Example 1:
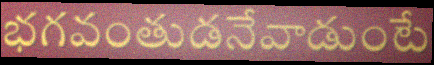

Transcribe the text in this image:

భగవంతుడనేవాడుంటే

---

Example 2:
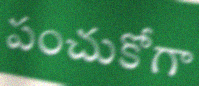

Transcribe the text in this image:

పంచుకోగా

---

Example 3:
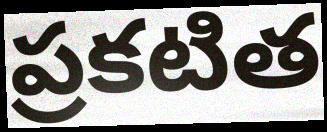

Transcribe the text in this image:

ప్రకటిత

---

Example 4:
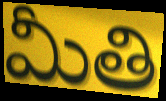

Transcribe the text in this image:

మీతి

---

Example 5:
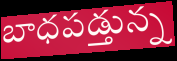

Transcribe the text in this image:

బాధపడ్తున్న